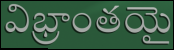
విభ్రాంతయై